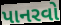
પાનરવો